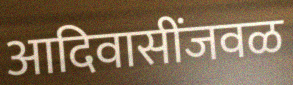
आदिवासींजवळ